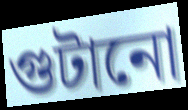
গুটানো